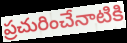
ప్రచురించేనాటికి